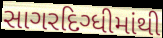
સાગરદિગ્ધીમાંથી